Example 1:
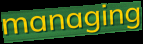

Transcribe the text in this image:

managing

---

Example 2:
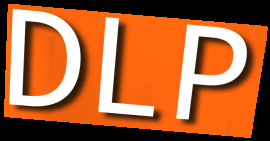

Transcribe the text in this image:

DLP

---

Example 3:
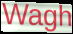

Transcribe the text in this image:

Wagh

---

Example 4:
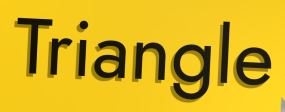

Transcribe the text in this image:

Triangle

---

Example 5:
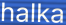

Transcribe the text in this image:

halka